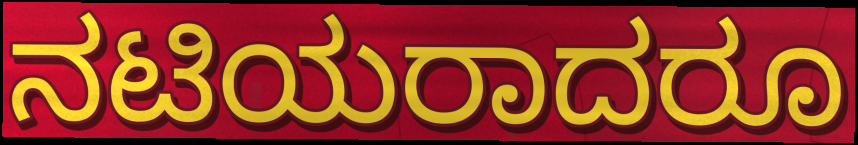
ನಟಿಯರಾದರೂ